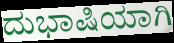
ದುಭಾಷಿಯಾಗಿ